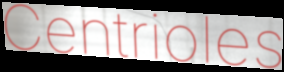
Centrioles